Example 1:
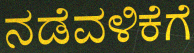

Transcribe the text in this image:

ನಡೆವಳಿಕೆಗೆ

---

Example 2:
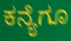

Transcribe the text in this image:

ಕನ್ಯೆಗೂ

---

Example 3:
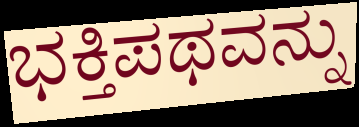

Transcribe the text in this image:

ಭಕ್ತಿಪಥವನ್ನು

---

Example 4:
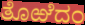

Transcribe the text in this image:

ತೊಱೆದಂ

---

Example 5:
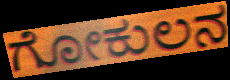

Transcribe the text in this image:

ಗೋಕುಲನ